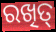
ରଖିତ୍